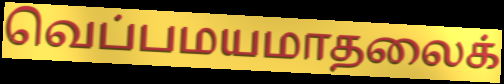
வெப்பமயமாதலைக்